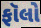
ફૉલો